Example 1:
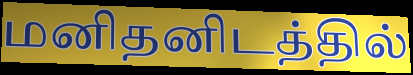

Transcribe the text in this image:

மனிதனிடத்தில்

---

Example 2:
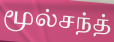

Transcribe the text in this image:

மூல்சந்த்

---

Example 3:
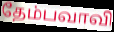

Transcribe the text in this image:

தேம்பவாவி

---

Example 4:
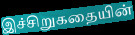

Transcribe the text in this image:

இச்சிறுகதையின்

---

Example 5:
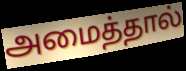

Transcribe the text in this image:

அமைத்தால்